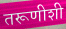
तरूणीशी